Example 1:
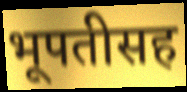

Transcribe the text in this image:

भूपतीसह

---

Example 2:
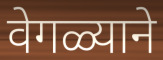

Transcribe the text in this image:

वेगळ्याने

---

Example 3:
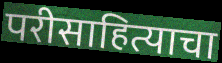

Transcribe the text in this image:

परीसाहित्याचा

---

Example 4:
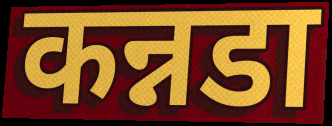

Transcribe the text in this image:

कन्नडा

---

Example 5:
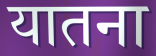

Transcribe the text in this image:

यातना